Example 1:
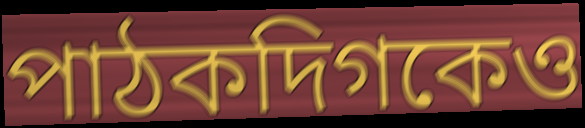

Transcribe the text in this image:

পাঠকদিগকেও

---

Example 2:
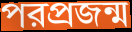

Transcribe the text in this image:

পরপ্রজন্ম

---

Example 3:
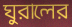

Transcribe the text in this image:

ঘুরালের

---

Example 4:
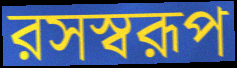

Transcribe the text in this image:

রসস্বরূপ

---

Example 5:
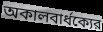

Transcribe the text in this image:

অকালবার্ধক্যের